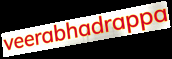
veerabhadrappa